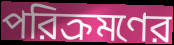
পরিক্রমণের